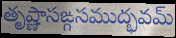
తృష్ణాసఙ్గసముద్భవమ్